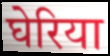
घेरिया